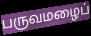
பருவமழைப்